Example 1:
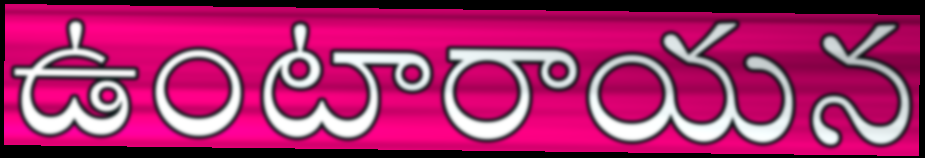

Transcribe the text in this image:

ఉంటారాయన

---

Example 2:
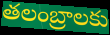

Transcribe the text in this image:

తలంబ్రాలకు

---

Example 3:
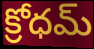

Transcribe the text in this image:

క్రోధమ్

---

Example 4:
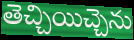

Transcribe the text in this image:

తెచ్చియిచ్చెను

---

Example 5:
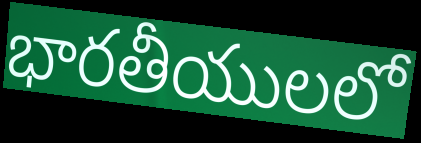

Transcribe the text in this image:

భారతీయులలో